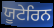
ਯੂਟੇਰਿਨ